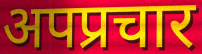
अपप्रचार